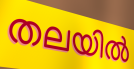
തലയിൽ